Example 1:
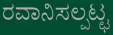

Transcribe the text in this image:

ರವಾನಿಸಲ್ಪಟ್ಟ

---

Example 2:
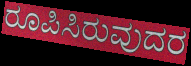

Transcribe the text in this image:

ರೂಪಿಸಿರುವುದರ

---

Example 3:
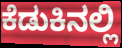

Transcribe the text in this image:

ಕೆಡುಕಿನಲ್ಲಿ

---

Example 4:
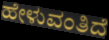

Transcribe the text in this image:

ಹೇಳುವಂತಿದೆ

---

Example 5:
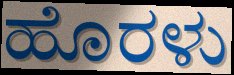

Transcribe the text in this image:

ಹೊರಳು